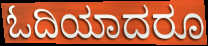
ಓದಿಯಾದರೂ